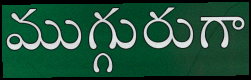
ముగ్గురుగా